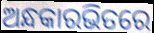
ଅନ୍ଧକାରଭିତରେ